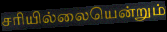
சரியில்லையென்றும்